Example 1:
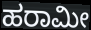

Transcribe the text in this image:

ಹರಾಮೀ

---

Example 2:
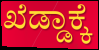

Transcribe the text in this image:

ಖೆಡ್ಡಾಕ್ಕೆ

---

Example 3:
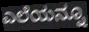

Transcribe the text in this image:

ಎಲೆಯನ್ನೂ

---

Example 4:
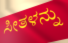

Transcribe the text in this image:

ಸೀತಳನ್ನು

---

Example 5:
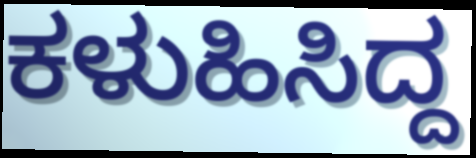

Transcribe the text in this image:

ಕಳುಹಿಸಿದ್ದ